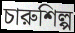
চারুশিল্প